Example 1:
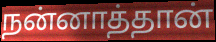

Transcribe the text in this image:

நன்னாத்தான்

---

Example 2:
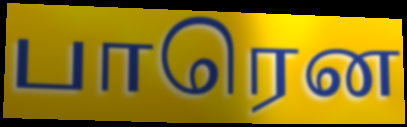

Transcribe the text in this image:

பாரென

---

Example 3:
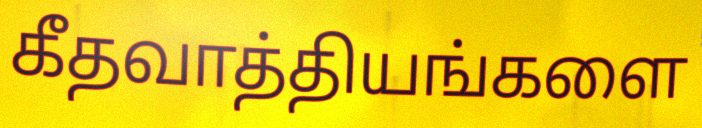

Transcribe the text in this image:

கீதவாத்தியங்களை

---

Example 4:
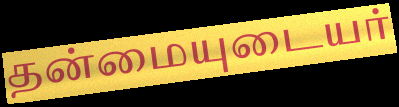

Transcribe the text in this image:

தன்மையுடையர்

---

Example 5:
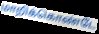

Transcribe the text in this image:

மாறிக்கொண்டே